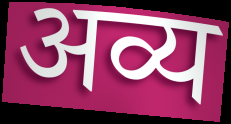
अव्य